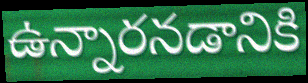
ఉన్నారనడానికి